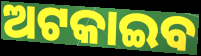
ଅଟକାଇବ